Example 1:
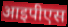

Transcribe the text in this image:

आइपीएस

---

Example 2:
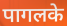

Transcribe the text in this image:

पागलके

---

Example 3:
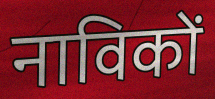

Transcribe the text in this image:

नाविकों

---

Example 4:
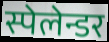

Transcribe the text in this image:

स्पेलेन्डर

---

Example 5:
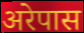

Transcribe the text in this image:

अरेपास